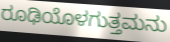
ರೂಢಿಯೊಳಗುತ್ತಮನು